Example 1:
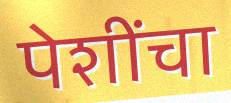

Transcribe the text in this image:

पेशींचा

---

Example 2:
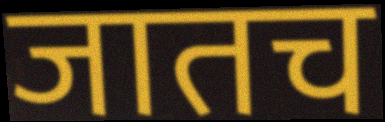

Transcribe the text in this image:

जातच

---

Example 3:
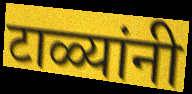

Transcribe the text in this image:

टाळ्यांनी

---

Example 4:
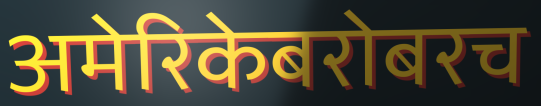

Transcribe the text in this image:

अमेरिकेबरोबरच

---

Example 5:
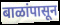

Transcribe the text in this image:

बाळांपासून